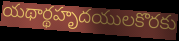
యథార్థహృదయులకొరకు